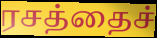
ரசத்தைச்